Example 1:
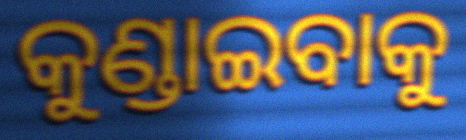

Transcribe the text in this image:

କୁଣ୍ଡାଇବାକୁ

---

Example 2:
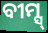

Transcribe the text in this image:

ବୀମ୍ସ୍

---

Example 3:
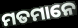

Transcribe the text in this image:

ମତମାନେ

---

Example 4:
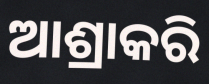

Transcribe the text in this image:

ଆଶ୍ରାକରି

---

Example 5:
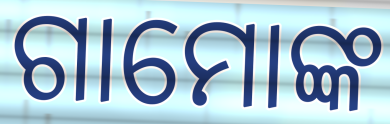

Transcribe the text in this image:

ଗାମୋଙ୍କ